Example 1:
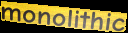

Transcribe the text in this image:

monolithic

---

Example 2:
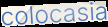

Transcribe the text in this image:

colocasia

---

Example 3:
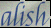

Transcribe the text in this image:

alish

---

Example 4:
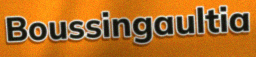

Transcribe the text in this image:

Boussingaultia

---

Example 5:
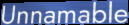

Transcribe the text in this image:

Unnamable